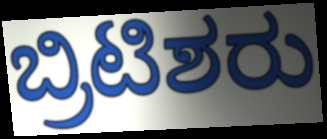
ಬ್ರಿಟಿಶರು